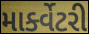
માર્ક્વેટરી